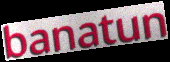
banatun